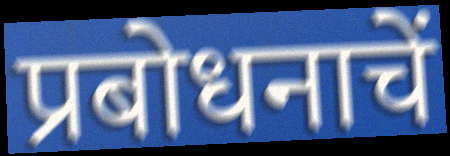
प्रबोधनाचें